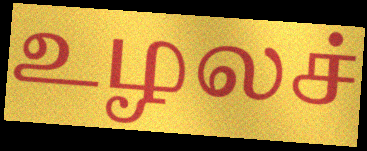
உழலச்